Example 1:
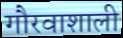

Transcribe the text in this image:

गौरवाशाली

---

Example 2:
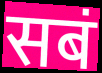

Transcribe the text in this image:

सबं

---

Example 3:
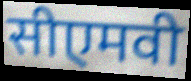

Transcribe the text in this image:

सीएमवी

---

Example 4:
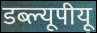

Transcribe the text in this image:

डब्ल्यूपीयू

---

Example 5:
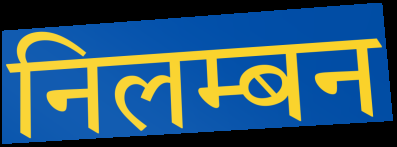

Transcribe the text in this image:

निलम्‍बन